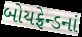
બોયફ્રેન્ડનાં